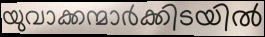
യുവാക്കന്മാർക്കിടയിൽ